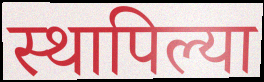
स्थापिल्या